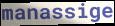
manassige